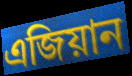
এজিয়ান